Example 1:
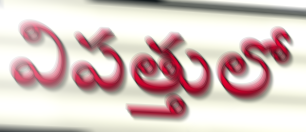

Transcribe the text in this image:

విపత్తులో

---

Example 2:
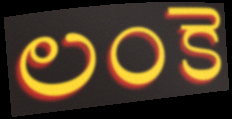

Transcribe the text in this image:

లంకె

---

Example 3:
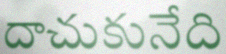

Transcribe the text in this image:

దాచుకునేది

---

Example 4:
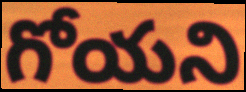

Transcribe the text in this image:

గోయని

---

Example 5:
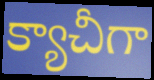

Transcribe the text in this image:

క్యాచీగా